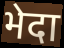
भेदा